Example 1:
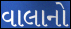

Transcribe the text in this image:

વાલાનો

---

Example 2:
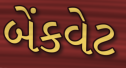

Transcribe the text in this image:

બેંકવેટ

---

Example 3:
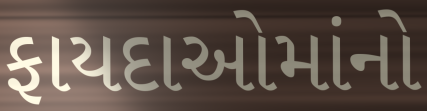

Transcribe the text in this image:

ફાયદાઓમાંનો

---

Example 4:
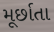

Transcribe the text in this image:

મૂર્છાતા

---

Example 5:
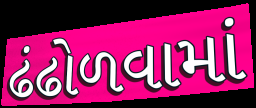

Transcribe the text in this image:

ઢંઢોળવામાં